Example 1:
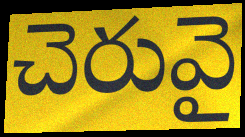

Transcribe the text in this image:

చెరువై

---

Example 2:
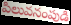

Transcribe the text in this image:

పిలువనంపుడి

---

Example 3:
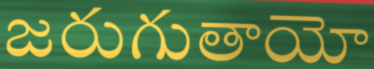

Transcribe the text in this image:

జరుగుతాయో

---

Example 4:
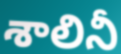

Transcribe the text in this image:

శాలినీ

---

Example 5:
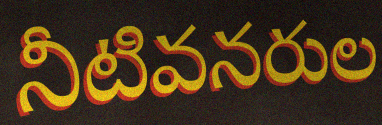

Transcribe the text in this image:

నీటివనరుల